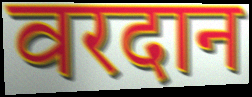
वरदान